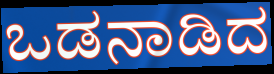
ಒಡನಾಡಿದ